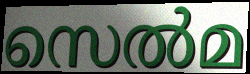
സെൽമ